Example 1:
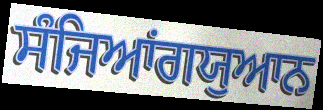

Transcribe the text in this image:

ਸੰਜਿਆਂਗਯੁਆਨ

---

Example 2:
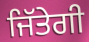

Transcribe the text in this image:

ਜਿੱਤੇਗੀ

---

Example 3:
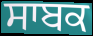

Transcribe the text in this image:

ਸਾਬਕ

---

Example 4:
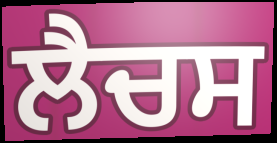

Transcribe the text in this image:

ਲੈਚਸ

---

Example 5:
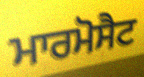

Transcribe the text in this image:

ਮਾਰਮੋਸੈਟ